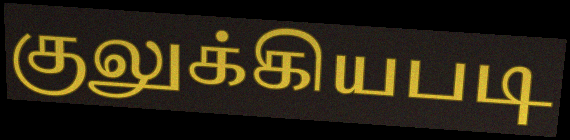
குலுக்கியபடி